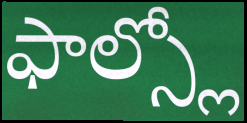
ఫాల్స్లో